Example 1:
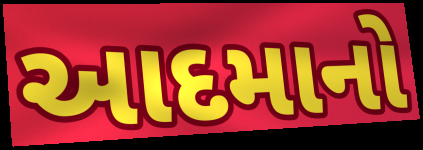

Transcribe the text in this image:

આદમાનો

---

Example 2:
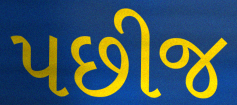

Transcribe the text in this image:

પછીજ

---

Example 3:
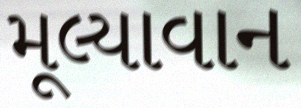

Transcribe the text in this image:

મૂલ્યાવાન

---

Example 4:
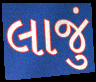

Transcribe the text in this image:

લાજું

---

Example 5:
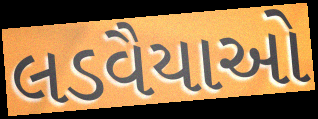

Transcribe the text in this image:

લડવૈયાઓ